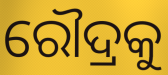
ରୌଦ୍ରକୁ